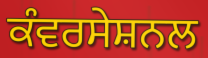
ਕੰਵਰਸੇਸ਼ਨਲ